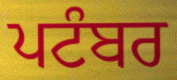
ਪਟੰਬਰ